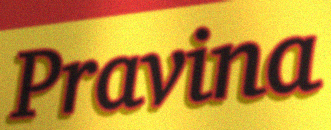
Pravina